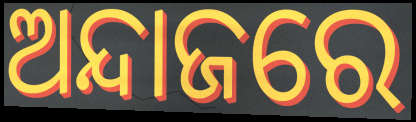
ଅନ୍ଦାଜରେ